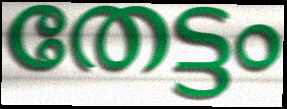
തേട്ടം